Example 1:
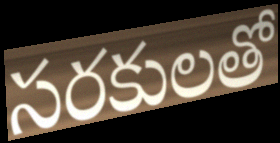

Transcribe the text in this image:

సరకులతో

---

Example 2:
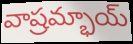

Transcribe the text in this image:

వాష్రమ్భాయ్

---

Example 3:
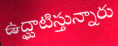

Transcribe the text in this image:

ఉద్ఘాటిస్తున్నారు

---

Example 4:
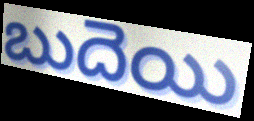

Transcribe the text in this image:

బుదెయి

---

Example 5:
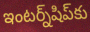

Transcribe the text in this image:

ఇంటర్న్‌షిప్‌కు